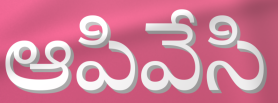
ఆపివేసి